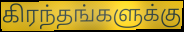
கிரந்தங்களுக்கு